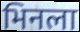
भिनला